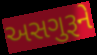
અસગુરૂને